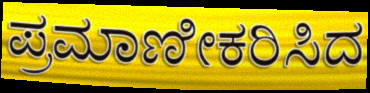
ಪ್ರಮಾಣೀಕರಿಸಿದ